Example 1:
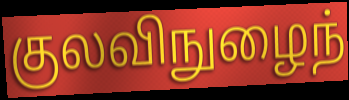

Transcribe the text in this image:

குலவிநுழைந்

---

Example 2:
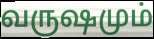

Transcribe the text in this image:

வருஷமும்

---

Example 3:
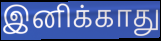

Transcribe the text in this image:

இனிக்காது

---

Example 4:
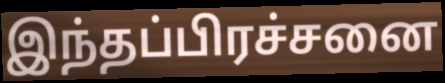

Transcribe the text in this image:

இந்தப்பிரச்சனை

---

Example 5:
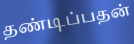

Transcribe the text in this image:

தண்டிப்பதன்